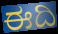
ಈದಿ